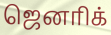
ஜெனரிக்